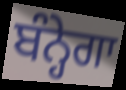
ਬੰਨ੍ਹੇਗਾ